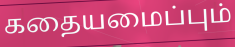
கதையமைப்பும்